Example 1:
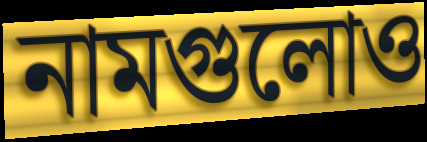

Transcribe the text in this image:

নামগুলোও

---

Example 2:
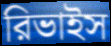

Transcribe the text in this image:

রিভাইস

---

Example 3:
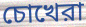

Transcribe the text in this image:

চোখেরা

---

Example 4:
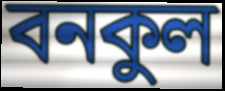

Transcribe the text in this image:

বনকুল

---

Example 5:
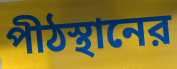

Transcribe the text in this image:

পীঠস্থানের